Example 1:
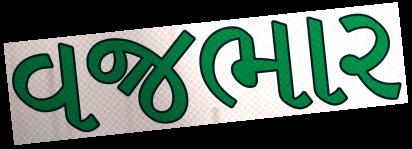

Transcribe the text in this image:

વજ્રભાર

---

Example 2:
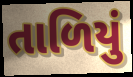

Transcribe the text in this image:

તાળિયું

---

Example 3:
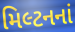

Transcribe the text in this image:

મિલ્ટનનાં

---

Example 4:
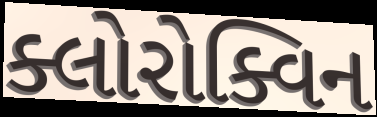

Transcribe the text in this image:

ક્લોરોક્વિન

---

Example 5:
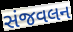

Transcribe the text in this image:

સંજવલન